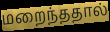
மறைந்ததால்